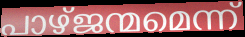
പാഴ്ജന്മമെന്ന്